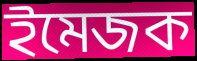
ইমেজক